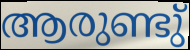
ആരുണ്ടു്